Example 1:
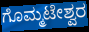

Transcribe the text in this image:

ಗೊಮ್ಮಟೇಶ್ವರ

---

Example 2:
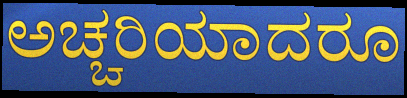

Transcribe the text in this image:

ಅಚ್ಚರಿಯಾದರೂ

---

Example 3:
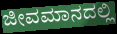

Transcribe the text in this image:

ಜೀವಮಾನದಲ್ಲಿ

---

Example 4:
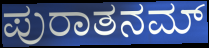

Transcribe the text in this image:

ಪುರಾತನಮ್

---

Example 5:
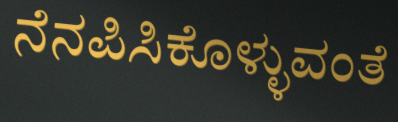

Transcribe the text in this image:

ನೆನಪಿಸಿಕೊಳ್ಳುವಂತೆ